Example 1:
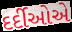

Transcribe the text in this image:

દર્દીઓએ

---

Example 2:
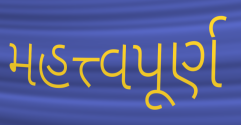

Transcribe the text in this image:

મહત્ત્વપૂર્ણ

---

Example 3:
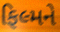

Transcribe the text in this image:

ફિલ્મને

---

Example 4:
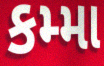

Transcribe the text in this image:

કમ્મા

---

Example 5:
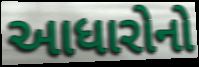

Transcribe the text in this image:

આધારોનો